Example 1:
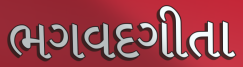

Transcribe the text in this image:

ભગવદગીતા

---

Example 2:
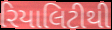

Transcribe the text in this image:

રિયાલિટીથી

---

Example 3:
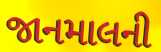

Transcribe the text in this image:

જાનમાલની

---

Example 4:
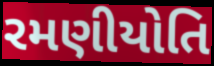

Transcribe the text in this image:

રમણીયોતિ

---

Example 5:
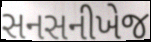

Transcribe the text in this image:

સનસનીખેજ